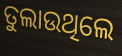
ତୁଲାଉଥିଲେ